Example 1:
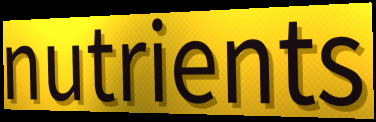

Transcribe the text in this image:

nutrients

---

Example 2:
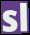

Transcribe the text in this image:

sl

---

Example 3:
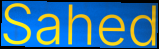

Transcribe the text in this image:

Sahed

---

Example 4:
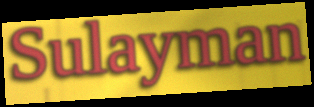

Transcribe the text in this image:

Sulayman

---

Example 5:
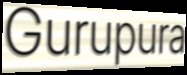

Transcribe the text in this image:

Gurupura